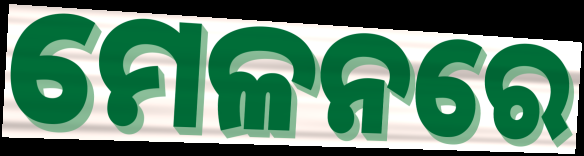
ମେଳନରେ